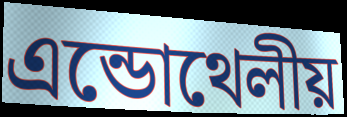
এন্ডোথেলীয়